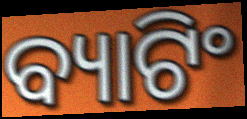
ବ୍ୟାଟିଂ